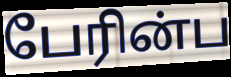
பேரின்ப